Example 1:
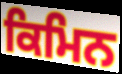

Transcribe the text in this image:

ਕਿਮਿਨ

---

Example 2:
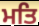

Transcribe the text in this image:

ਮਤਿ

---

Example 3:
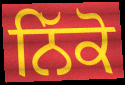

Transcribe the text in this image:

ਨਿੱਕੋ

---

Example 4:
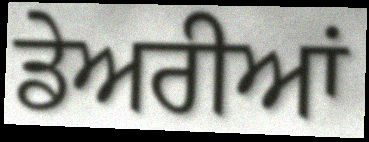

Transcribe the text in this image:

ਡੇਅਰੀਆਂ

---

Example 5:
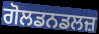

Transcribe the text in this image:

ਗੋਲਡਨਡਲਜ਼